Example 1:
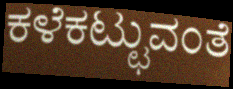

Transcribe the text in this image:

ಕಳೆಕಟ್ಟುವಂತೆ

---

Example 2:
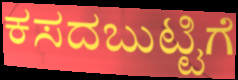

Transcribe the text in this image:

ಕಸದಬುಟ್ಟಿಗೆ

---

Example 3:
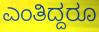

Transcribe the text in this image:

ಎಂತಿದ್ದರೂ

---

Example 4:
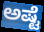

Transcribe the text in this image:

ಅಷ್ಟೆ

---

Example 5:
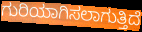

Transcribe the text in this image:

ಗುರಿಯಾಗಿಸಲಾಗುತ್ತಿದೆ